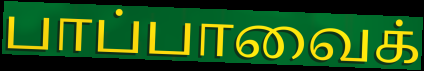
பாப்பாவைக்